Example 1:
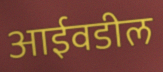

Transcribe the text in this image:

आईवडील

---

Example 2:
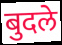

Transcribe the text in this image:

बुदले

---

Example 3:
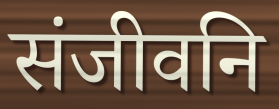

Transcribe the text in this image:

संजीवनि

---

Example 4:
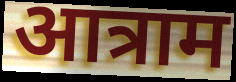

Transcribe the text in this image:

आत्राम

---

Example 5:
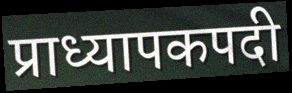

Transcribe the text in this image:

प्राध्यापकपदी